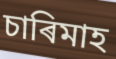
চাৰিমাহ